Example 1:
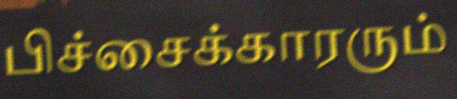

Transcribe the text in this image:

பிச்சைக்காரரும்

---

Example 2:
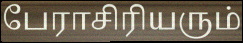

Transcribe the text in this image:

பேராசிரியரும்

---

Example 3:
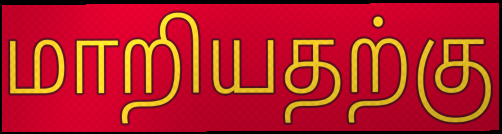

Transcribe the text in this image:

மாறியதற்கு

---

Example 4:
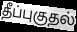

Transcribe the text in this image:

தீப்புகுதல்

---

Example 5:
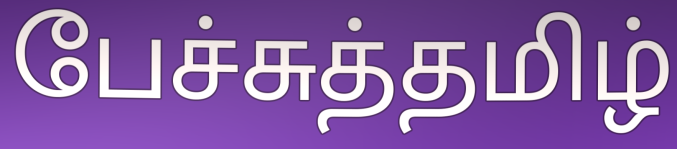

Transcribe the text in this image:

பேச்சுத்தமிழ்